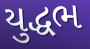
યુદ્ધભ